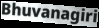
Bhuvanagiri